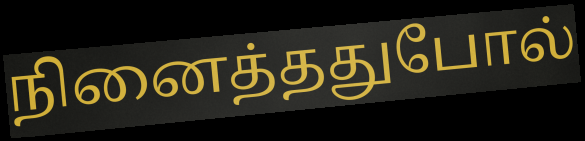
நினைத்ததுபோல்